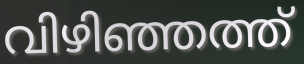
വിഴിഞ്ഞത്ത്